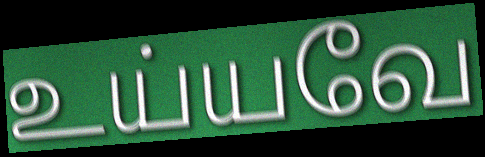
உய்யவே